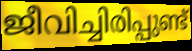
ജീവിച്ചിരിപ്പുണ്ട്